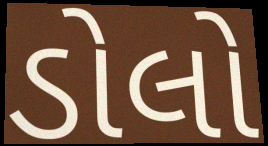
ડોલો